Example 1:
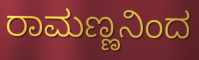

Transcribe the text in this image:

ರಾಮಣ್ಣನಿಂದ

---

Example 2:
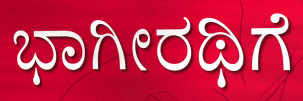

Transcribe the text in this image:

ಭಾಗೀರಥಿಗೆ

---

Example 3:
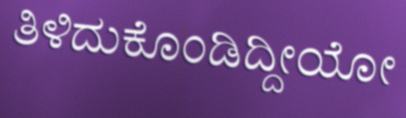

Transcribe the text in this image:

ತಿಳಿದುಕೊಂಡಿದ್ದೀಯೋ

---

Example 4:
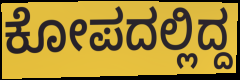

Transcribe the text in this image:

ಕೋಪದಲ್ಲಿದ್ದ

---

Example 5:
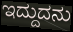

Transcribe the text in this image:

ಇದ್ದುದನು